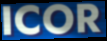
ICOR